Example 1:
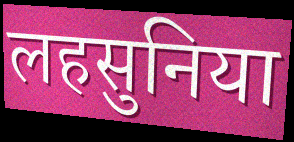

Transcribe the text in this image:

लहसुनिया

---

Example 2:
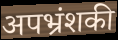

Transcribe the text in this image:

अपभ्रंशकी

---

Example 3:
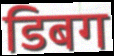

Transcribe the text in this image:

डिबग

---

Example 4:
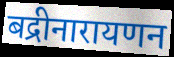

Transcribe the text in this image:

बद्रीनारायणन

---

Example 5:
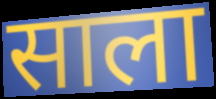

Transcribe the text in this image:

साला